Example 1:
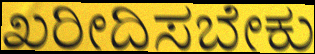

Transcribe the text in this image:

ಖರೀದಿಸಬೇಕು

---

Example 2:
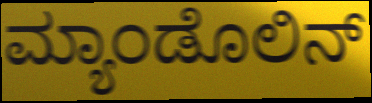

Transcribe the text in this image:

ಮ್ಯಾಂಡೊಲಿನ್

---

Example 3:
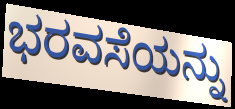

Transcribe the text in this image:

ಭರವಸೆಯನ್ನು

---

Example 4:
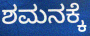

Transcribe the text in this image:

ಶಮನಕ್ಕೆ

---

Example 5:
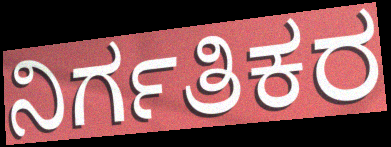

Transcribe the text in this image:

ನಿರ್ಗತಿಕರ